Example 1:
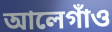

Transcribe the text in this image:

আলেগাঁও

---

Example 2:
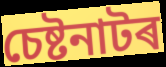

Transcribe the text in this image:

চেষ্টনাটৰ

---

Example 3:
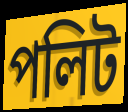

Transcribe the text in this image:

পলিট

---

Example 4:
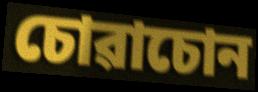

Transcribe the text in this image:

চোৱাচোন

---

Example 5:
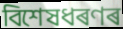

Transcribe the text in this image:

বিশেষধৰণৰ